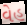
વેહ